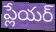
ప్లేయర్